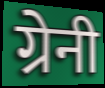
ग्रेनी